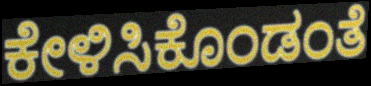
ಕೇಳಿಸಿಕೊಂಡಂತೆ